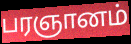
பரஞானம்